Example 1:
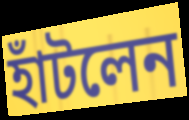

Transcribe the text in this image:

হাঁটলেন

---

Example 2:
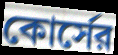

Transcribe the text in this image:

কোর্সের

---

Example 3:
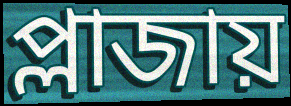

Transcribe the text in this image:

প্লাজায়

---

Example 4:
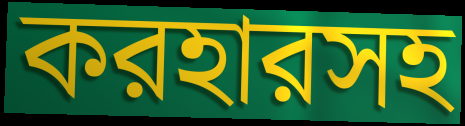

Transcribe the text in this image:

করহারসহ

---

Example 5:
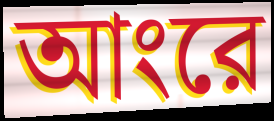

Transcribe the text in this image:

আংরে